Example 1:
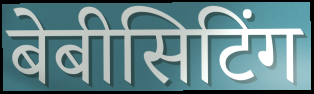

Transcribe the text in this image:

बेबीसिटिंग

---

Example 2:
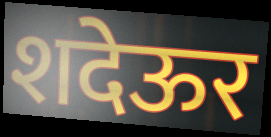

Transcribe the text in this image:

शदेऊर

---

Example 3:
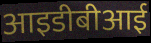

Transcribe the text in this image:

आइडीबीआई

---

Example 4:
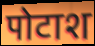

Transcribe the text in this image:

पोटाश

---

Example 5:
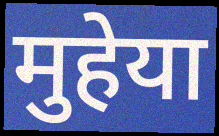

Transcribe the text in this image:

मुहेया